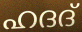
ഹദദ്